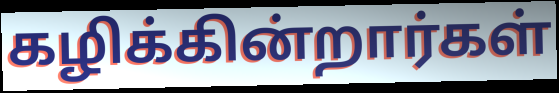
கழிக்கின்றார்கள்